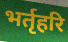
भर्तृहरि